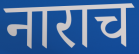
नाराच